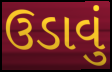
ઉડાવું